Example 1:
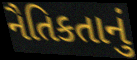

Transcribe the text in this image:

નૈતિકતાનું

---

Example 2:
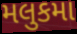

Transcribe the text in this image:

મલુકમા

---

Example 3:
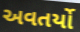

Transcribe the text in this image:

અવતર્યો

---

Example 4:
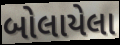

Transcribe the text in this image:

બોલાયેલા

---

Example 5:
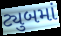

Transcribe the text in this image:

ટ્યુબમાં